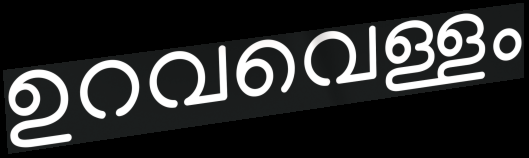
ഉറവവെള്ളം